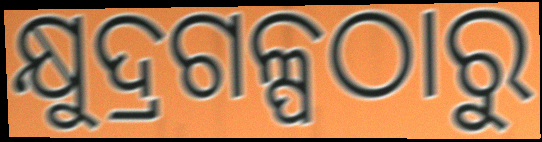
କ୍ଷୁଦ୍ରଗଳ୍ପଠାରୁ